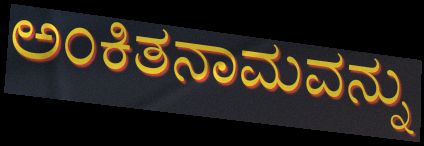
ಅಂಕಿತನಾಮವನ್ನು